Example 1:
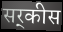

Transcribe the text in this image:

सर्कीस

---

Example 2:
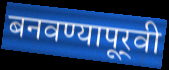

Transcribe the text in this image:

बनवण्यापूर्वी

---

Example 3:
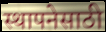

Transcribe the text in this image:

स्थापनेसाठी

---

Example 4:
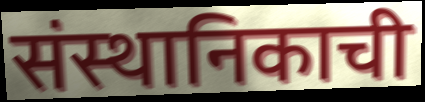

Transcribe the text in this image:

संस्थानिकाची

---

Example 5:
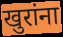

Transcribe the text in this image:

खुरांना